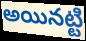
అయినట్టి